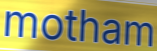
motham